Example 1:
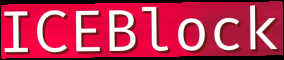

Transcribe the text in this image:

ICEBlock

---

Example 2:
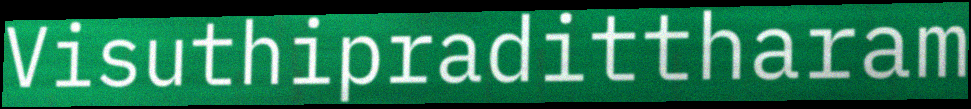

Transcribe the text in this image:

Visuthipradittharam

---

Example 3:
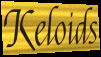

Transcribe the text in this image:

Keloids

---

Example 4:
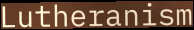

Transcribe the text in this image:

Lutheranism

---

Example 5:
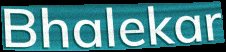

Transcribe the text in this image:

Bhalekar